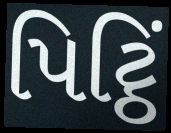
પિટ્ઠિં